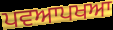
ਪਵਆਪਖਆ